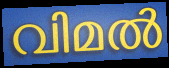
വിമൽ